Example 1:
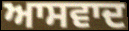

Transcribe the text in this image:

ਆਸਵਾਦ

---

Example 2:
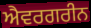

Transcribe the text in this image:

ਐਵਰਗਰੀਨ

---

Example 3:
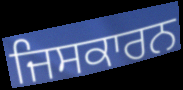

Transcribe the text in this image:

ਜਿਸਕਾਰਨ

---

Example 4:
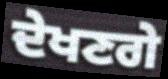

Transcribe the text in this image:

ਦੇਖਣਗੇ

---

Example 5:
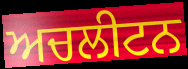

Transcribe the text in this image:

ਅਚਲੀਟਨ